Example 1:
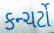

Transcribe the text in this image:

કન્ચર્ટો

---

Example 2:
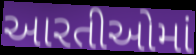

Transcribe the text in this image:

આરતીઓમાં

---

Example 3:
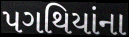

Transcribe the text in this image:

પગથિયાંના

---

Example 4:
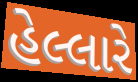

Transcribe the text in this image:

હેલ્લારે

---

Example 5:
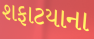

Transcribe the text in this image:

શફાટયાના